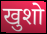
खुशो